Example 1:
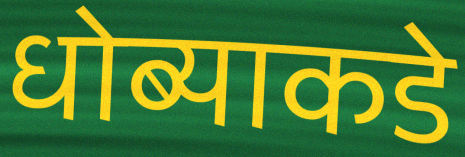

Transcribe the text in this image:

धोब्याकडे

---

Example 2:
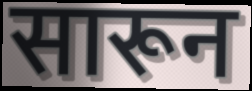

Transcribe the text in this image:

सारून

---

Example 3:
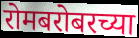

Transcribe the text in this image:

रोमबरोबरच्या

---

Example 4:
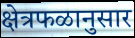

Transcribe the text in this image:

क्षेत्रफळानुसार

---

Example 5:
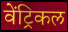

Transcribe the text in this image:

वेंट्रिकल